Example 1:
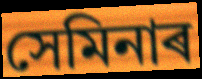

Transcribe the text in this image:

সেমিনাৰ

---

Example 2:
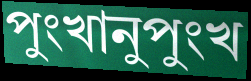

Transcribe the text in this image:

পুংখানুপুংখ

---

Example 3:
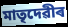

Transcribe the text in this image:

মাতৃদেৱীৰ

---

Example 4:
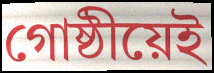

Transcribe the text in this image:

গোষ্ঠীয়েই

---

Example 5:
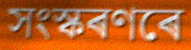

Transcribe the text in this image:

সংস্কৰণৰে